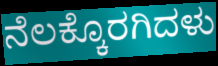
ನೆಲಕ್ಕೊರಗಿದಳು